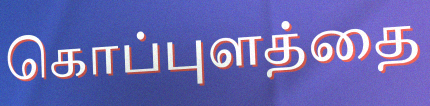
கொப்புளத்தை